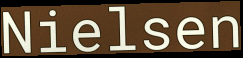
Nielsen